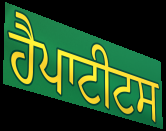
ਹੈਪਾਟੀਟਸ